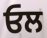
ਓਲ